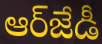
ఆర్‌జేడీ